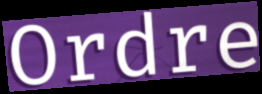
Ordre